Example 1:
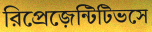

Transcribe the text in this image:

রিপ্রেজ়েন্টিটিভসে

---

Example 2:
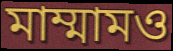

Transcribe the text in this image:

মাম্মামও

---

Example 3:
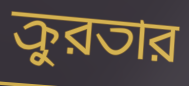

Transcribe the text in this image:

ক্রুরতার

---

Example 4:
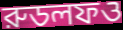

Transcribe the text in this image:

রুডলফও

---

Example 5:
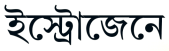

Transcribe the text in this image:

ইস্ট্রোজেনে